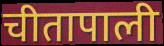
चीतापाली